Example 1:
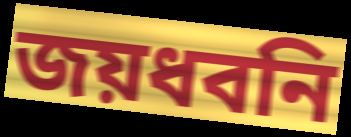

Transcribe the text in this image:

জয়ধবনি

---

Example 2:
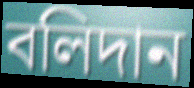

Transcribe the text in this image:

বলিদান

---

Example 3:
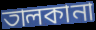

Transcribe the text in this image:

তালকানা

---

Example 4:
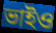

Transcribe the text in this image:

ভাইও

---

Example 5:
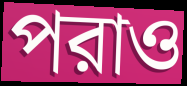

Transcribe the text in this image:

পরাও